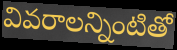
వివరాలన్నింటితో